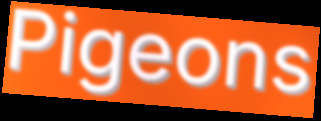
Pigeons